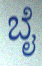
ಬೈ